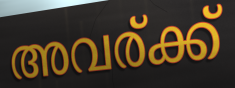
അവര്ക്ക്